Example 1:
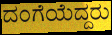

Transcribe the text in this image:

ದಂಗೆಯೆದ್ದರು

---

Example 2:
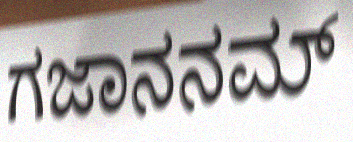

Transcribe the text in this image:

ಗಜಾನನಮ್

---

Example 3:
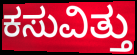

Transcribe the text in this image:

ಕಸುವಿತ್ತು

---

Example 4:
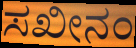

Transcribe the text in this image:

ಸಖೀನಂ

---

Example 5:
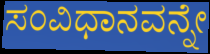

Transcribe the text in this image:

ಸಂವಿಧಾನವನ್ನೇ